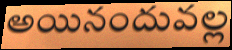
అయినందువల్ల